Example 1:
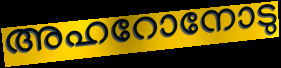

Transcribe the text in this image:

അഹറോനോടു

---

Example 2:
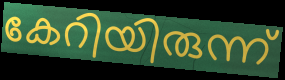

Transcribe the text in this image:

കേറിയിരുന്ന്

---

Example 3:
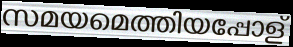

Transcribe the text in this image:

സമയമെത്തിയപ്പോള്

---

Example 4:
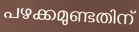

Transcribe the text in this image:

പഴക്കമുണ്ടതിന്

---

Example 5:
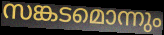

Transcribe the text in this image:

സങ്കടമൊന്നും